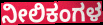
ನೀಲಿಕಂಗಳ